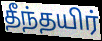
தீந்தயிர்